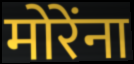
मोरेंना